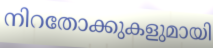
നിറതോക്കുകളുമായി